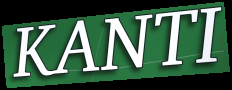
KANTI